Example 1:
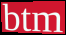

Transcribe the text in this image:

btm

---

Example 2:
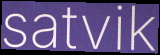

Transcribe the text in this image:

satvik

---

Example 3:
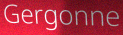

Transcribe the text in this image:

Gergonne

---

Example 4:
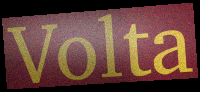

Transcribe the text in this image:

Volta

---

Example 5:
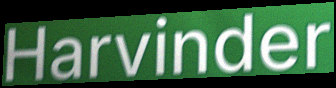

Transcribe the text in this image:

Harvinder